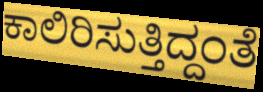
ಕಾಲಿರಿಸುತ್ತಿದ್ದಂತೆ